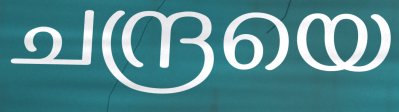
ചന്ദ്രയെ